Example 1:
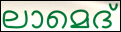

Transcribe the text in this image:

ലാമെദ്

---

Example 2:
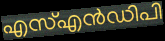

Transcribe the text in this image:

എസ്എൻഡിപി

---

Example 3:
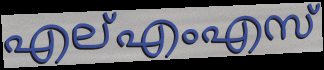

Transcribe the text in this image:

എല്എംഎസ്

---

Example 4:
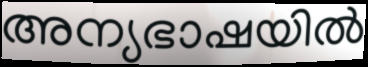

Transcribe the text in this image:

അന്യഭാഷയിൽ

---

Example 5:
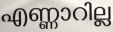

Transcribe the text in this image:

എണ്ണാറില്ല